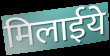
मिलाईये